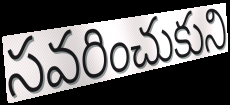
సవరించుకుని